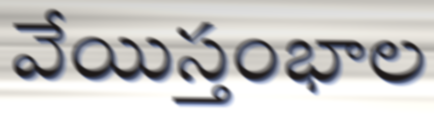
వేయిస్తంభాల